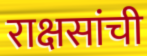
राक्षसांची